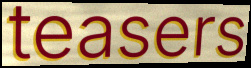
teasers